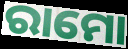
ରାମୋ